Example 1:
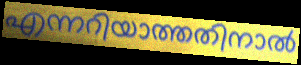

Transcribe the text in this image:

എന്നറിയാത്തതിനാൽ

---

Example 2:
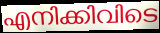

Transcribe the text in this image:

എനിക്കിവിടെ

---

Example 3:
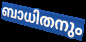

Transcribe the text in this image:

ബാധിതനും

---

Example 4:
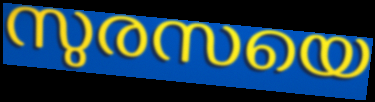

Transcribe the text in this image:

സുരസയെ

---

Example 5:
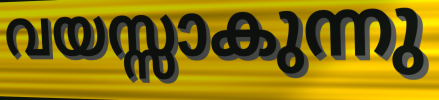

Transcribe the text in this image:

വയസ്സാകുന്നു